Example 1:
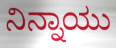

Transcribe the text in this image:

ನಿನ್ನಾಯು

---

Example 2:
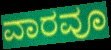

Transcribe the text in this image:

ವಾರವೂ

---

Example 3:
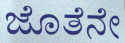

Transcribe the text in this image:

ಜೊತೆನೇ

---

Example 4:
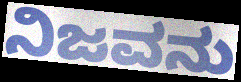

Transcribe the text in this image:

ನಿಜವನು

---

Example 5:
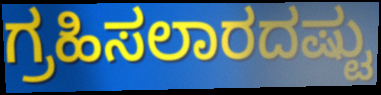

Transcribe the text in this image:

ಗ್ರಹಿಸಲಾರದಷ್ಟು